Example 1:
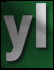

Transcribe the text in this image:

yl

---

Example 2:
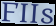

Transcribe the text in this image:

FIIs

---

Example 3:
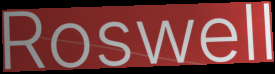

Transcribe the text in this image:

Roswell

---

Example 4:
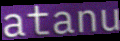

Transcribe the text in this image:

atanu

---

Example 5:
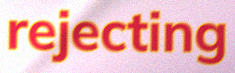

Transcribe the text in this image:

rejecting